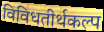
विविधतीर्थकल्प